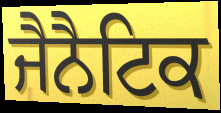
ਜੈਨੈਟਿਕ